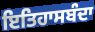
ਇਤਿਹਾਸਬੰਦਾ